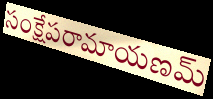
సంక్షేపరామాయణమ్